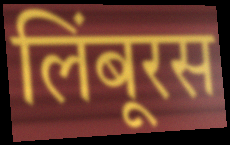
लिंबूरस